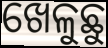
ଖେଳୁଛୁ